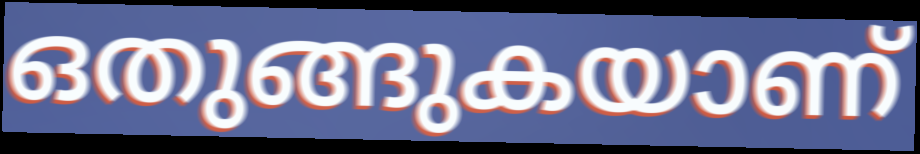
ഒതുങ്ങുകയാണ്